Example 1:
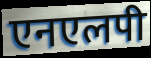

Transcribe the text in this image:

एनएलपी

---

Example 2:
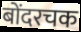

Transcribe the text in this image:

बोंदरचक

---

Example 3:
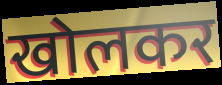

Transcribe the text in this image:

खोलकर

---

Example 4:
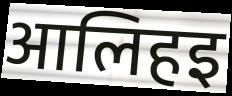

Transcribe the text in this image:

आलिहइ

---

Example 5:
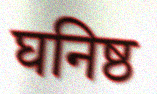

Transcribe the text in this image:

घनिष्ठ